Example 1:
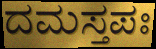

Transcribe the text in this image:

ದಮಸ್ತಪಃ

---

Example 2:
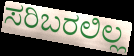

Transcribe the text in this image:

ಸರಿಬರಲಿಲ್ಲ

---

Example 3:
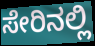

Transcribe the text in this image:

ಸೇರಿನಲ್ಲಿ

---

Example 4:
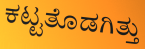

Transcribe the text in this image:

ಕಟ್ಟತೊಡಗಿತ್ತು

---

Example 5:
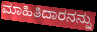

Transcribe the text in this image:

ಮಾಹಿತಿದಾರನನ್ನು